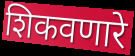
शिकवणारे